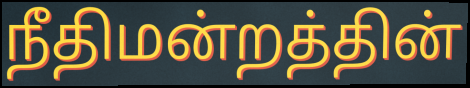
நீதிமன்றத்தின்